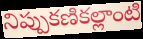
నిప్పుకణికల్లాంటి